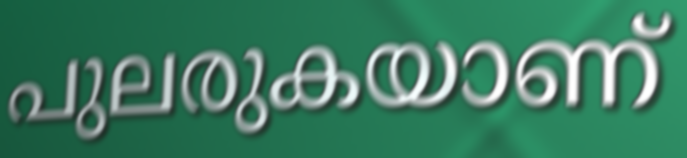
പുലരുകയാണ്